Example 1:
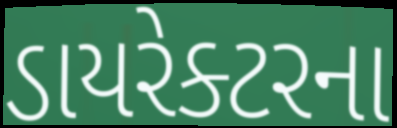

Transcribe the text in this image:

ડાયરેક્ટરના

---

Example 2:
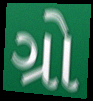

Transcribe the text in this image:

ગ્રો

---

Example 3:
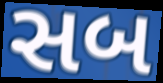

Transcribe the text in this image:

સબ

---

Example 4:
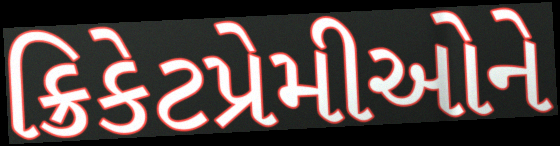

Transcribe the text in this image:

ક્રિકેટપ્રેમીઓને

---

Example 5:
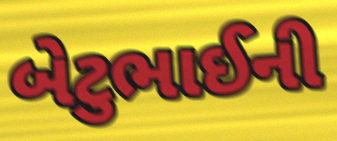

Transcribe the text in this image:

બેટુભાઈની